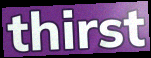
thirst